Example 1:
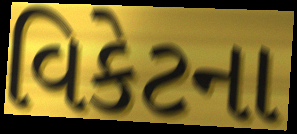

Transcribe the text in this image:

વિકેટના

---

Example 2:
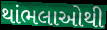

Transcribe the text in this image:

થાંભલાઓથી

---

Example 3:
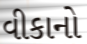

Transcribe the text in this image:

વીકાનો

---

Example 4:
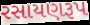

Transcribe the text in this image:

રસાયણરૂપ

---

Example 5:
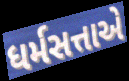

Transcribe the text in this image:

ધર્મસત્તાએ